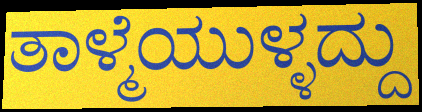
ತಾಳ್ಮೆಯುಳ್ಳದ್ದು